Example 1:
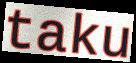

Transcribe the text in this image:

taku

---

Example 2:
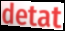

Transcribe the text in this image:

detat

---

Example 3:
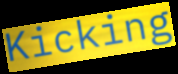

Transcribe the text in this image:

Kicking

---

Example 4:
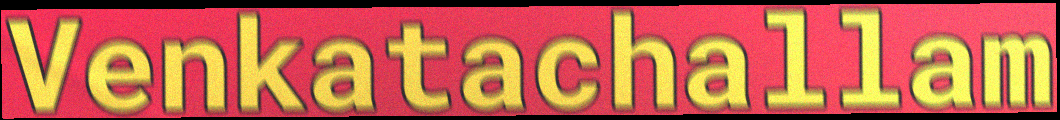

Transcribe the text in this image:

Venkatachallam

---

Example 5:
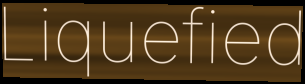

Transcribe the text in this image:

Liquefied